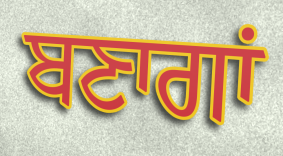
ਬਣਾਗਾਂ